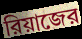
রিয়াজের